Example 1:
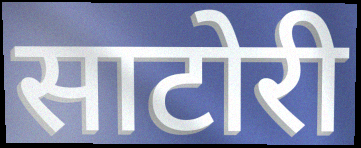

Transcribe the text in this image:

साटोरी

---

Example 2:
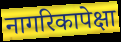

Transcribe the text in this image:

नागरिकापेक्षा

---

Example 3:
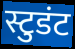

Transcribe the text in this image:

स्टुडंट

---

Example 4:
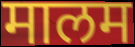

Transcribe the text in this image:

मालम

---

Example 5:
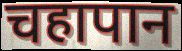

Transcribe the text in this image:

चहापान